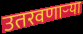
उतरवणाऱ्या